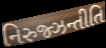
નિરુજ્ઝન્તીતિ